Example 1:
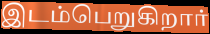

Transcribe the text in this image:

இடம்பெறுகிறார்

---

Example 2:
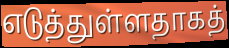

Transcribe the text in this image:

எடுத்துள்ளதாகத்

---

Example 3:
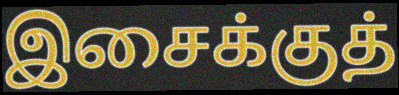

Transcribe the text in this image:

இசைக்குத்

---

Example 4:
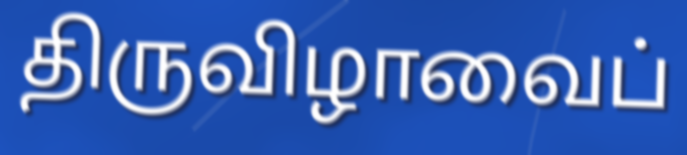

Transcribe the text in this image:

திருவிழாவைப்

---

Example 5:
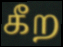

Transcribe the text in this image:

கீற